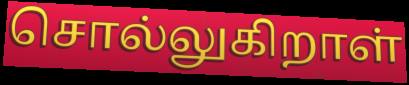
சொல்லுகிறாள்